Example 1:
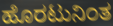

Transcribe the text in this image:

ಹೊರಟುನಿಂತ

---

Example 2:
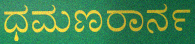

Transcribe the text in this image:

ಧಮಣರಾರ್ನ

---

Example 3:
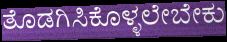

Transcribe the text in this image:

ತೊಡಗಿಸಿಕೊಳ್ಳಲೇಬೇಕು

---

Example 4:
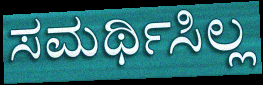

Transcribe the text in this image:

ಸಮರ್ಥಿಸಿಲ್ಲ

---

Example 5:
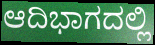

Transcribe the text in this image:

ಆದಿಭಾಗದಲ್ಲಿ